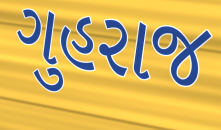
ગુહરાજ